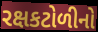
રક્ષકટોળીનો